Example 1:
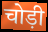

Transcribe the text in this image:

चोड़ी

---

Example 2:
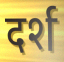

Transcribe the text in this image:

दर्श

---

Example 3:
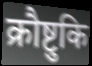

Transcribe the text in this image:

क्रौष्टुकि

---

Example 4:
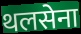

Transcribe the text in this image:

थलसेना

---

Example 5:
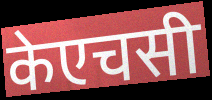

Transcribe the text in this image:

केएचसी